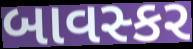
બાવસ્કર